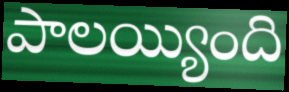
పాలయ్యింది